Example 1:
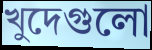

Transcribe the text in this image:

খুদেগুলো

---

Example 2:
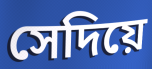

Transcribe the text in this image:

সেদিয়ে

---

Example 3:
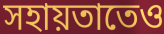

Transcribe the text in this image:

সহায়তাতেও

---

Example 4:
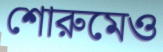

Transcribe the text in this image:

শোরুমেও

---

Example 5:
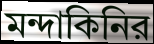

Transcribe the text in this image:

মন্দাকিনির